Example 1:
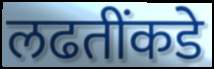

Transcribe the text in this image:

लढतींकडे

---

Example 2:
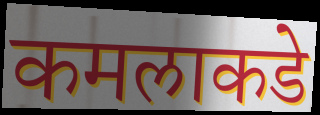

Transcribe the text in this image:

कमलाकडे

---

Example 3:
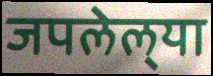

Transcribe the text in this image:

जपलेल्या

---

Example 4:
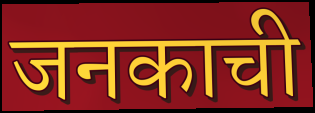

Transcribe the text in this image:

जनकाची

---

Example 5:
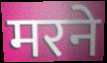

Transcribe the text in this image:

मरने